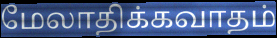
மேலாதிக்கவாதம்